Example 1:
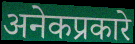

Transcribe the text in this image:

अनेकप्रकारे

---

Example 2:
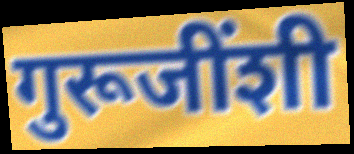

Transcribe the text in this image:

गुरूजींशी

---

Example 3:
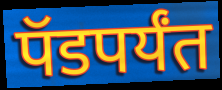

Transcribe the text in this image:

पॅडपर्यंत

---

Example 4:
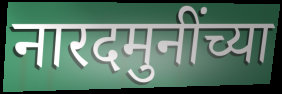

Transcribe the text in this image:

नारदमुनींच्या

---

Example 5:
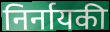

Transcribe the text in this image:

निर्नायकी